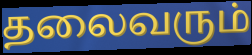
தலைவரும்